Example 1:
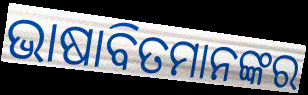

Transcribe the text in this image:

ଭାଷାବିତମାନଙ୍କର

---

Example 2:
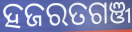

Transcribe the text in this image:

ହଜରତଗଞ୍ଜ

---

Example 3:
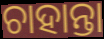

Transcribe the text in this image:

ଚାହାନ୍ତା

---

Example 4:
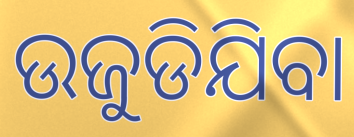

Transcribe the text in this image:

ଉଜୁଡିଯିବା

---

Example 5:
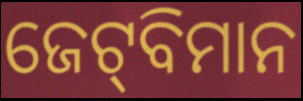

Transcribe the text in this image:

ଜେଟ୍‍ବିମାନ